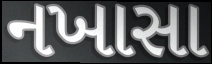
નખાસા